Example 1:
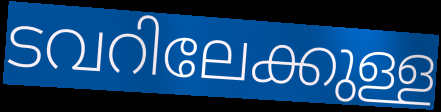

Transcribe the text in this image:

ടവറിലേക്കുള്ള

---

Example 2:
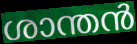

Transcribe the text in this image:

ശാന്തൻ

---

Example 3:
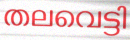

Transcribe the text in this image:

തലവെട്ടി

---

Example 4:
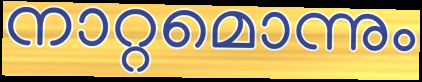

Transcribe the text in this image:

നാറ്റമൊന്നും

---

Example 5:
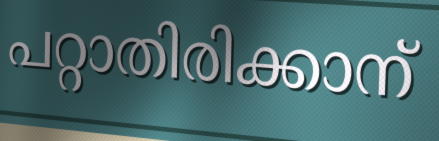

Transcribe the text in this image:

പറ്റാതിരിക്കാന്